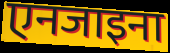
एनजाइना